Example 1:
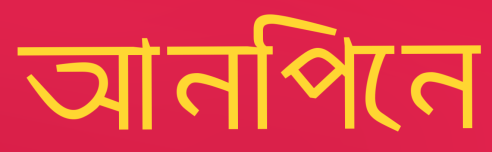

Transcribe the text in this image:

আনপিনে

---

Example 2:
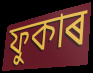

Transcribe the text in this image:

ফুকাৰ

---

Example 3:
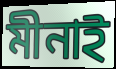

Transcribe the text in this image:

মীনাই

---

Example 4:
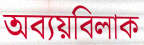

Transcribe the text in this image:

অব্যয়বিলাক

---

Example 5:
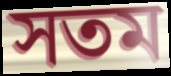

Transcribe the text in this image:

সতম